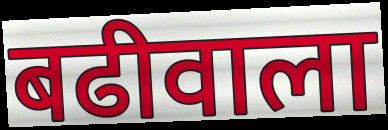
बढीवाला